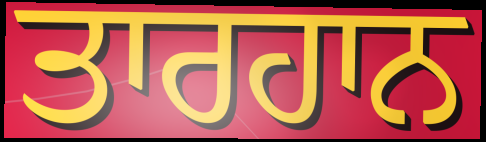
ਤਾਰਹਾਨ